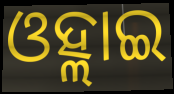
ଓହ୍ଲାଇ